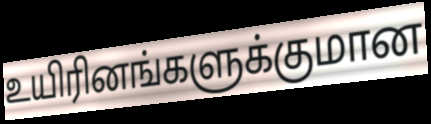
உயிரினங்களுக்குமான